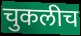
चुकलीच